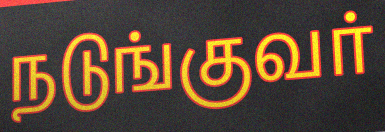
நடுங்குவர்